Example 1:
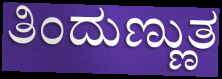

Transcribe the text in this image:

ತಿಂದುಣ್ಣುತ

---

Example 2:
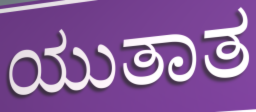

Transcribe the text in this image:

ಯುತಾತ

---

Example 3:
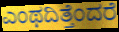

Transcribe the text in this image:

ಎಂಥದಿತ್ತೆಂದರೆ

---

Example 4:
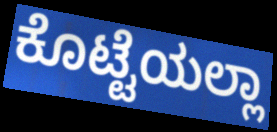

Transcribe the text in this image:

ಕೊಟ್ಟೆಯಲ್ಲಾ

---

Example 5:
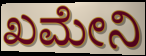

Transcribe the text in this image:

ಖಮೇನಿ